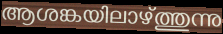
ആശങ്കയിലാഴ്ത്തുന്നു